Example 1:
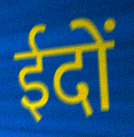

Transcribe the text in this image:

ईदों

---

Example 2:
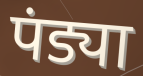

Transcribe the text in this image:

पंड्या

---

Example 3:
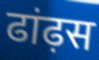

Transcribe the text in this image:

ढांढ़स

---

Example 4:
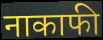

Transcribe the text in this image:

नाकाफी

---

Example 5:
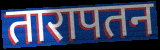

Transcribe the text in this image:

तारापतन